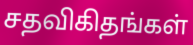
சதவிகிதங்கள்